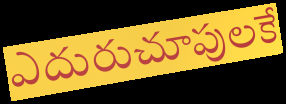
ఎదురుచూపులకే